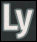
Ly